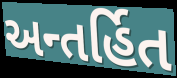
અન્તર્હિત